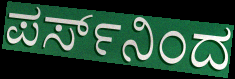
ಪರ್ಸ್‌ನಿಂದ